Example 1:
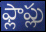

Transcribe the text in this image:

ఫ్లాప్లు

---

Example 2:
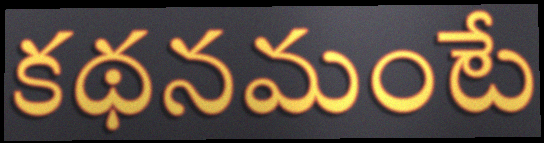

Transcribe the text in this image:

కథనమంటే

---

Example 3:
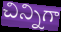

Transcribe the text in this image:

చిన్నిగా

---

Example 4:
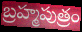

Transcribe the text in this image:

బ్రహ్మపుత్రం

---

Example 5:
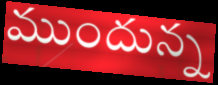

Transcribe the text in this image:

ముందున్న